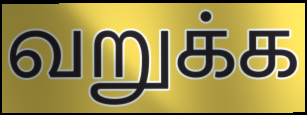
வறுக்க